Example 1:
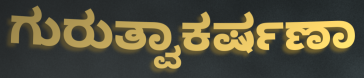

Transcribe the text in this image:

ಗುರುತ್ವಾಕರ್ಷಣಾ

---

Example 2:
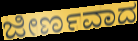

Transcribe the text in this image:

ಜೀರ್ಣವಾದ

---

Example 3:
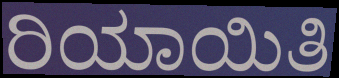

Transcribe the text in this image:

ರಿಯಾಯಿತಿ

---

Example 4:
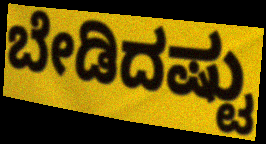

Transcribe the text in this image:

ಬೇಡಿದಷ್ಟು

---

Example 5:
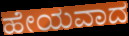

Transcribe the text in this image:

ಹೇಯವಾದ